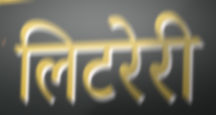
लिटरेरी